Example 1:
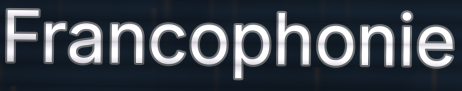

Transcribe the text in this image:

Francophonie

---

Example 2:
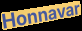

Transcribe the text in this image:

Honnavar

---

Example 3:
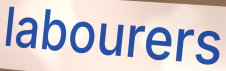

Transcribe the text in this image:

labourers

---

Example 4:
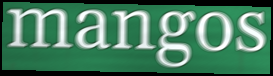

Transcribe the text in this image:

mangos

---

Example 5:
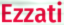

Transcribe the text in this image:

Ezzati